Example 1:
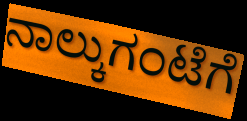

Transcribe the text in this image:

ನಾಲ್ಕುಗಂಟೆಗೆ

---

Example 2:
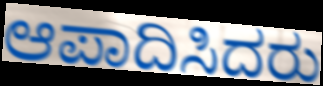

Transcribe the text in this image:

ಆಪಾದಿಸಿದರು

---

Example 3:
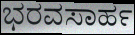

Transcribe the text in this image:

ಭರವಸಾರ್ಹ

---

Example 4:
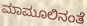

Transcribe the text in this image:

ಮಾಮೂಲಿನಂತೆ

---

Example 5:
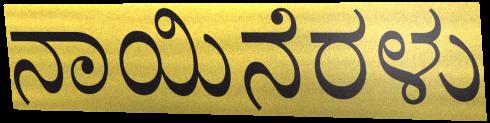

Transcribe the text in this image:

ನಾಯಿನೆರಳು